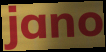
jano